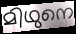
മിഥുനെ